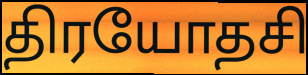
திரயோதசி